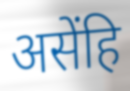
असेंहि